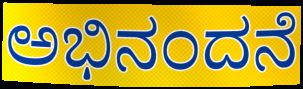
ಅಭಿನಂದನೆ